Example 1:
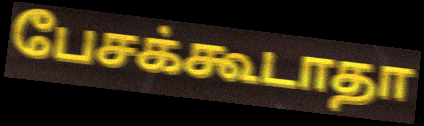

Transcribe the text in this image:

பேசக்கூடாதா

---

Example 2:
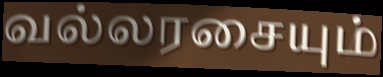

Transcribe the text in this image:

வல்லரசையும்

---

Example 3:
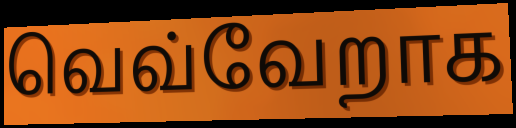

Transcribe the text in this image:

வெவ்வேறாக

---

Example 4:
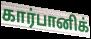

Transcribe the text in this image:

கார்பானிக்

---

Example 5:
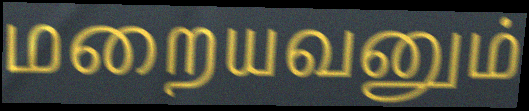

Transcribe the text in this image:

மறையவனும்